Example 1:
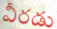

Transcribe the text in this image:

వీరడు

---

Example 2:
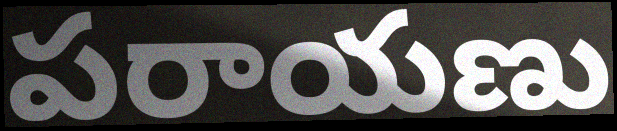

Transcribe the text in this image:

పరాయణు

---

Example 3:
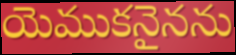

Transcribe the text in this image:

యెముకనైనను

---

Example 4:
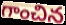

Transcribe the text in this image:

గాంచిన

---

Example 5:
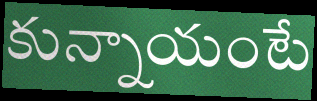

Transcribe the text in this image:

కున్నాయంటే